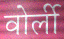
वोर्ली